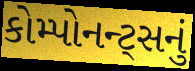
કોમ્પોનન્ટ્સનું